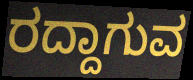
ರದ್ದಾಗುವ